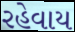
રહેવાય